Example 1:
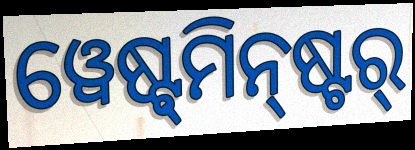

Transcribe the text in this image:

ୱେଷ୍ଟ୍‌ମିନ୍‌ଷ୍ଟର୍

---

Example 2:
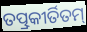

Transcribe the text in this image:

ତତ୍ପ୍ରକୀର୍ତିତମ୍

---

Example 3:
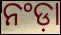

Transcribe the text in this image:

ନଂଡ଼ା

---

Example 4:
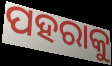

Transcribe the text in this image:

ପହରାକୁ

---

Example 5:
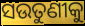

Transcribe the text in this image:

ସଉତୁଣୀକୁ